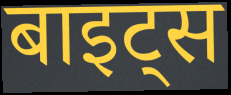
बाइट्स